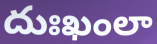
దుఃఖంలా